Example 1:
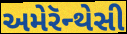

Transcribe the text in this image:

અમેરૅન્થેસી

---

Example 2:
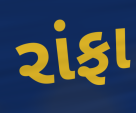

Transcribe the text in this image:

રાંફા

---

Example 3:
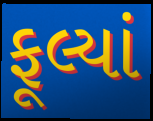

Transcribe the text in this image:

ફૂલ્યાં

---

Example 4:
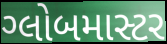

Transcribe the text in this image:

ગ્લોબમાસ્ટર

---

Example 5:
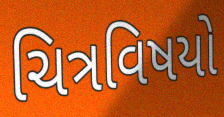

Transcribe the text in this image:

ચિત્રવિષયો